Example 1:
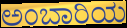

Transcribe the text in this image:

ಅಂಬಾರಿಯ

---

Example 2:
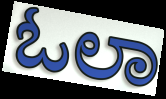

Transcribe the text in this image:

ಓಲಾ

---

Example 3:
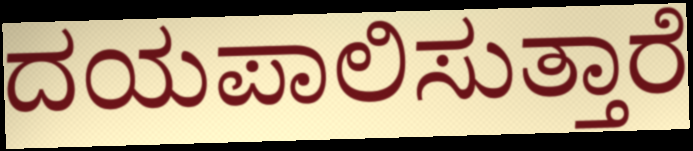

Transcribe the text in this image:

ದಯಪಾಲಿಸುತ್ತಾರೆ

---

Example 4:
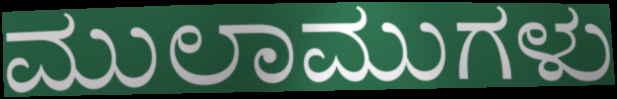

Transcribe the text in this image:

ಮುಲಾಮುಗಳು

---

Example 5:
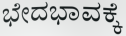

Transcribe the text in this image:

ಭೇದಭಾವಕ್ಕೆ